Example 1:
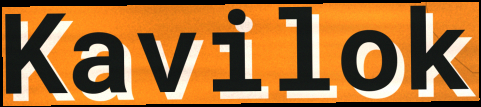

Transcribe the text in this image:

Kavilok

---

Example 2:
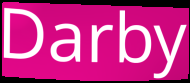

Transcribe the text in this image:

Darby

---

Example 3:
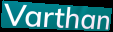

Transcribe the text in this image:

Varthan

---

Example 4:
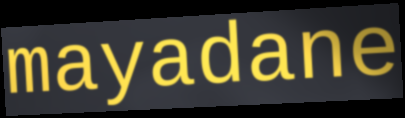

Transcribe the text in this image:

mayadane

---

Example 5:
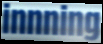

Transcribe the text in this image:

innning